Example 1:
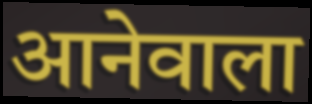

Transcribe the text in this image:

आनेवाला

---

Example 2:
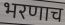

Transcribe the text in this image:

भरणाच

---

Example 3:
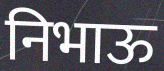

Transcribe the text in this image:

निभाऊ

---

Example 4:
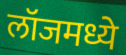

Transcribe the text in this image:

लॉजमध्ये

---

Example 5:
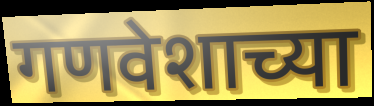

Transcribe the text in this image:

गणवेशाच्या